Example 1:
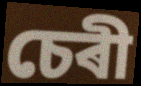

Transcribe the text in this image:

চেৰী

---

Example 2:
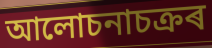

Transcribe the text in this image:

আলোচনাচক্ৰৰ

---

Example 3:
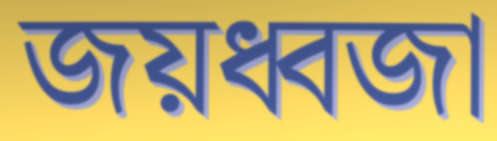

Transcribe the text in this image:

জয়ধ্বজা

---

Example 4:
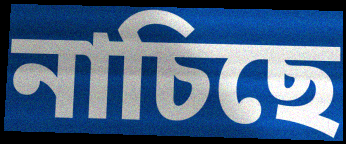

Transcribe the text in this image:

নাচিছে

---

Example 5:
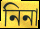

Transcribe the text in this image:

নিনা